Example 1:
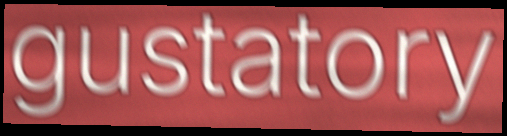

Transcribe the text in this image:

gustatory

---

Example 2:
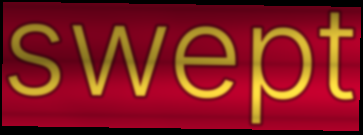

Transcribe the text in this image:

swept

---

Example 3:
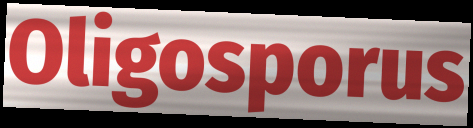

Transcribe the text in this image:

Oligosporus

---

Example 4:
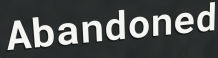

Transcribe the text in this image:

Abandoned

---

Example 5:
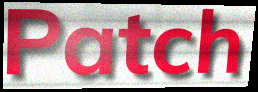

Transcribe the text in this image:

Patch